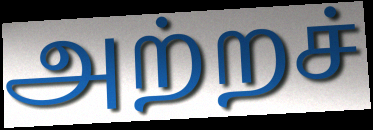
அற்றச்